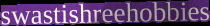
swastishreehobbies